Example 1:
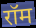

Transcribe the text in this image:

रॉम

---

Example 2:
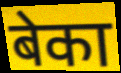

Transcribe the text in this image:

बेका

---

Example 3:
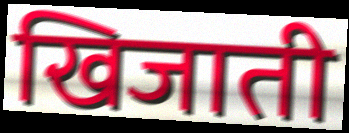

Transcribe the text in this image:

खिजाती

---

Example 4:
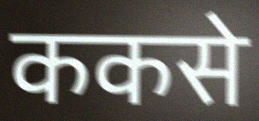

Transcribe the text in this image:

ककसे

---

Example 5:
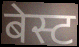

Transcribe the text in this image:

बेस्‍ट